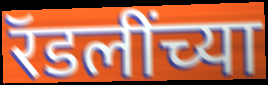
रॅडलींच्या